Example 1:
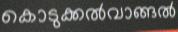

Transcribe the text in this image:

കൊടുക്കൽവാങ്ങൽ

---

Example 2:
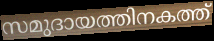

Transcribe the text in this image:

സമുദായത്തിനകത്ത്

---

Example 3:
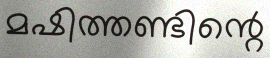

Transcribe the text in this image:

മഷിത്തണ്ടിന്റെ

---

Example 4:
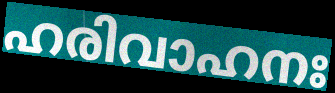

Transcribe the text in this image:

ഹരിവാഹനഃ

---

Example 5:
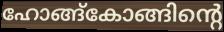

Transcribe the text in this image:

ഹോങ്ങ്കോങ്ങിന്റെ